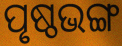
ପୃଷ୍ଠଭଙ୍ଗ